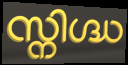
സ്നിഗ്ദ്ധ